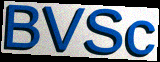
BVSc